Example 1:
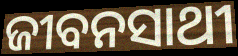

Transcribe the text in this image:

ଜୀବନସାଥୀ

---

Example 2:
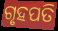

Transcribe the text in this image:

ଗୃହପତି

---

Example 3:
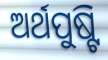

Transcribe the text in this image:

ଅର୍ଥପୁଷ୍ଟି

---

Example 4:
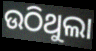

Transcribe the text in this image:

ଉଠିଥୁଲା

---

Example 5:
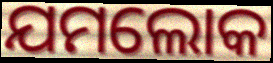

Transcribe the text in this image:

ଯମଲୋକ